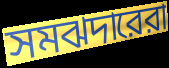
সমঝদারেরা